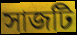
সাজটি